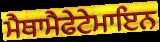
ਮੈਥਾਮੈਫੇਟੇਮਾਇਨ